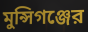
মুন্সিগঞ্জের